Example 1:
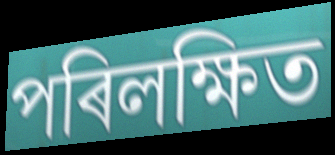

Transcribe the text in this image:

পৰিলক্ষিত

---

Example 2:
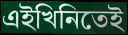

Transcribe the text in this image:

এইখিনিতেই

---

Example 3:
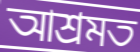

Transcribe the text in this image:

আশ্ৰমত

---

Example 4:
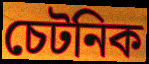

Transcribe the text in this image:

চেটনিক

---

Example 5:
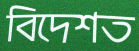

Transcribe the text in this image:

বিদেশত